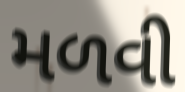
મળવી